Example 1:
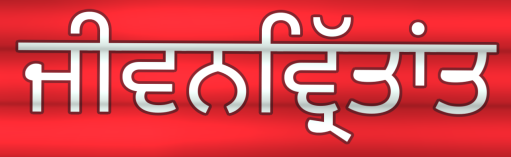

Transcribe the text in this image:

ਜੀਵਨਵ੍ਰਿੱਤਾਂਤ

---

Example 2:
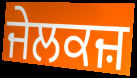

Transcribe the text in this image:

ਜੇਲਕਜ਼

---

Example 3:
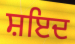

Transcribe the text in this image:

ਸ਼ਇਦ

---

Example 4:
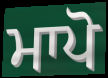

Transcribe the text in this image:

ਮਾਪੋ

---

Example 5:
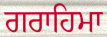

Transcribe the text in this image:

ਗਰਾਹਿਮਾ